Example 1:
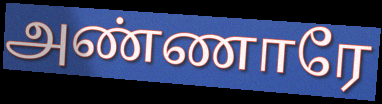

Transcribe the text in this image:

அண்ணாரே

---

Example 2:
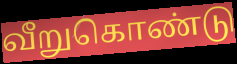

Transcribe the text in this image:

வீறுகொண்டு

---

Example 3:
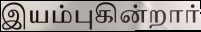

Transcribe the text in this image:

இயம்புகின்றார்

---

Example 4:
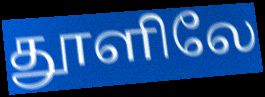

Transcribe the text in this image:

தூளிலே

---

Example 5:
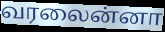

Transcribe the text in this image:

வரலைன்னா